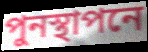
পুনস্থাপনে